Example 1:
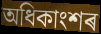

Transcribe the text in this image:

অধিকাংশৰ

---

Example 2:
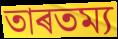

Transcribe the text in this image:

তাৰতম্য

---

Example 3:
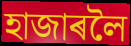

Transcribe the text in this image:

হাজাৰলৈ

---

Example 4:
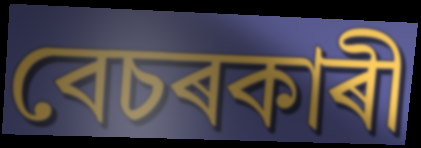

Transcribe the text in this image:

বেচৰকাৰী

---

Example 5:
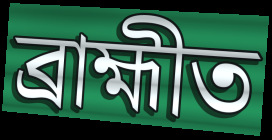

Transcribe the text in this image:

ব্ৰাহ্মীত